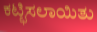
ಕಟ್ಟಿಸಲಾಯಿತು